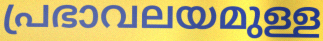
പ്രഭാവലയമുള്ള